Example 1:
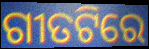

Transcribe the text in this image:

ଗୀତଟିରେ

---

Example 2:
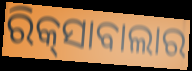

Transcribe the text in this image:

ରିକ୍‌ସାବାଲାର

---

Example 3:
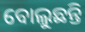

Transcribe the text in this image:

ବୋଲୁଛନ୍ତି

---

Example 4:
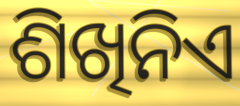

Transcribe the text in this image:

ଶିଖିନିଏ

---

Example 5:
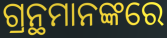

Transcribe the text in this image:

ଗ୍ରନ୍ଥମାନଙ୍କରେ